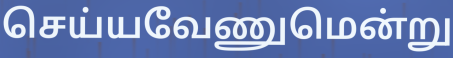
செய்யவேணுமென்று